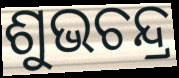
ଶୁଭଚନ୍ଦ୍ର